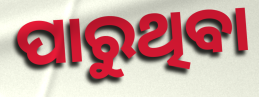
ପାରୁଥିବା